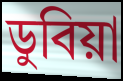
ডুবিয়া